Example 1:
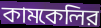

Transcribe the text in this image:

কামকেলির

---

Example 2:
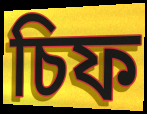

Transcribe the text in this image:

চিফ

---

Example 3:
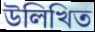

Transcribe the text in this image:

উলিখিত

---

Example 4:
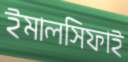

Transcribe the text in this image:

ইমালসিফাই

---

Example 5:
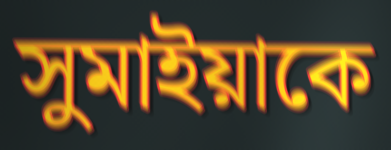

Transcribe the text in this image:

সুমাইয়াকে